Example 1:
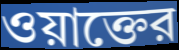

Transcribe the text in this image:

ওয়াক্তের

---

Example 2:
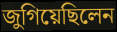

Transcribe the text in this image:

জুগিয়েছিলেন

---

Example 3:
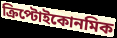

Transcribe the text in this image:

ক্রিপ্টোইকোনমিক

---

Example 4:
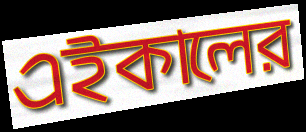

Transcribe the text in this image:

এইকালের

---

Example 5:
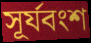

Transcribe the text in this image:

সূর্যবংশ